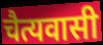
चैत्यवासी